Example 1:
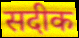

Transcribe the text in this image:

सदीक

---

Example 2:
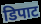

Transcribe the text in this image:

डिपाट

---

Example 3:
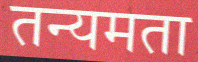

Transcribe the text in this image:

तन्यमता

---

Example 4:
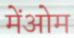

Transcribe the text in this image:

मेंओम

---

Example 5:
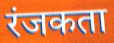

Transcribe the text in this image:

रंजकता